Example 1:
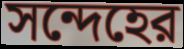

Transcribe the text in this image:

সন্দেহের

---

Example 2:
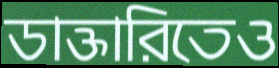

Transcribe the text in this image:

ডাক্তারিতেও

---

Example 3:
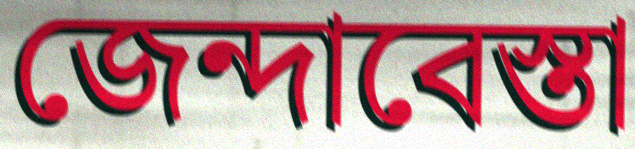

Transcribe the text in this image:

জেন্দাবেস্তা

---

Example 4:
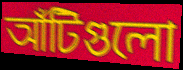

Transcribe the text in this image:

আঁটিগুলো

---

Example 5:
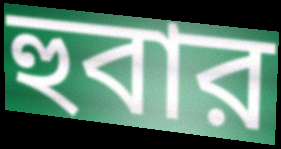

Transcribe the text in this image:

হুবার